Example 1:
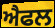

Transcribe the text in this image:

ਐਫਲ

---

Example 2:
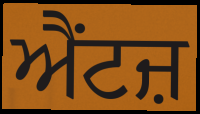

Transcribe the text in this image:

ਐਂਟਜ਼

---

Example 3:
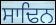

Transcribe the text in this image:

ਸਾਢਿਨ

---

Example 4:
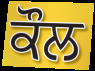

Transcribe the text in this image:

ਕੌਲ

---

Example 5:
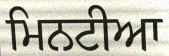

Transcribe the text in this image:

ਮਿਨਟੀਆ